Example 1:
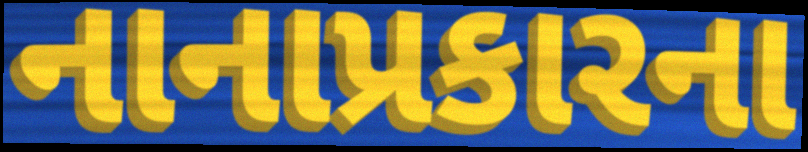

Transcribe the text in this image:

નાનાપ્રકારના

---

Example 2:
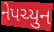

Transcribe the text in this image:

નેપચ્યુન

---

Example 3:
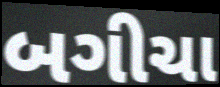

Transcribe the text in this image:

બગીચા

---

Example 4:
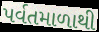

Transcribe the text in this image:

પર્વતમાળાથી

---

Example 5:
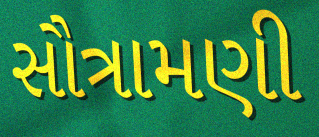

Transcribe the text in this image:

સૌત્રામણી